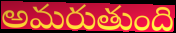
అమరుతుంది